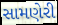
સામણેરી